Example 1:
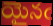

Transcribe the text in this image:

యైనఁ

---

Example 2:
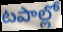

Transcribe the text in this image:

టపాల్లో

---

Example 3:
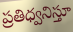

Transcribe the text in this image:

ప్రతిధ్వనిస్తూ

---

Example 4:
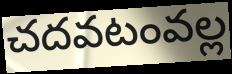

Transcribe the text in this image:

చదవటంవల్ల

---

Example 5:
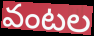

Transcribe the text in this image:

వంటల